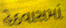
હેઠવાસમાં